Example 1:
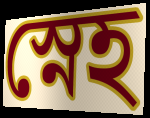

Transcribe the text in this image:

স্নেহ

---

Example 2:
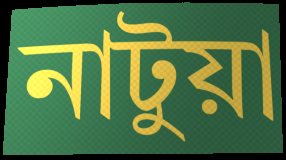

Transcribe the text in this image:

নাটুয়া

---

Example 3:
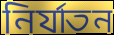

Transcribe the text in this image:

নির্যাতন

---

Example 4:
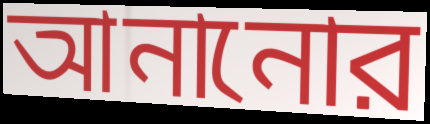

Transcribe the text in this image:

আনানোর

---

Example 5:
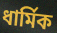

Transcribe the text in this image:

ধার্মিক